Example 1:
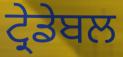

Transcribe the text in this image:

ਟ੍ਰੇਡੇਬਲ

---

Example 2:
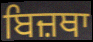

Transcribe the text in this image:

ਬਿਜ਼ਥਾ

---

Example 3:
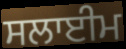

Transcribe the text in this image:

ਸਲਾਈਮ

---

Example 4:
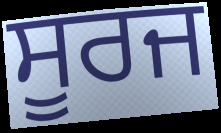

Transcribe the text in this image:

ਸੂਰਜ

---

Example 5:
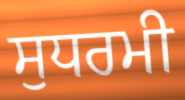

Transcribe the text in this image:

ਸੁਧਰਮੀ